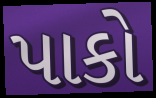
પાકો